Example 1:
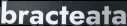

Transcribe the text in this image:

bracteata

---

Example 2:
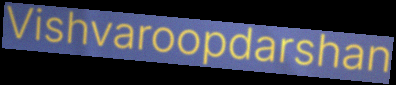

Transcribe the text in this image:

Vishvaroopdarshan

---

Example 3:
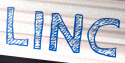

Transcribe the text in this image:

LINC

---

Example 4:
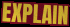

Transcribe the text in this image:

EXPLAIN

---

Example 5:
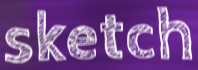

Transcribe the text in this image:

sketch